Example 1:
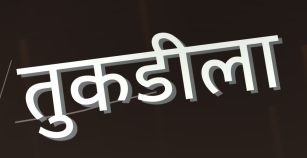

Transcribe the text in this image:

तुकडीला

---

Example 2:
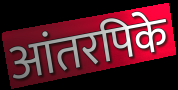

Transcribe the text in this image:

आंतरपिके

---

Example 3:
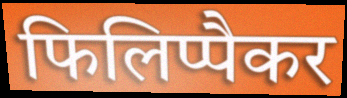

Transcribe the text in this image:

फिलिप्पैकर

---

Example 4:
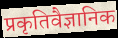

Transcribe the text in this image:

प्रकृतिवैज्ञानिक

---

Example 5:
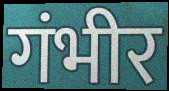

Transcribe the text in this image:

गंभीर